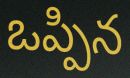
ఒప్పిన